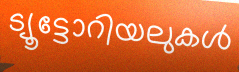
ട്യൂട്ടോറിയലുകൾ